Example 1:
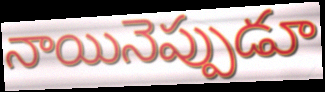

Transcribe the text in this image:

నాయినెప్పుడూ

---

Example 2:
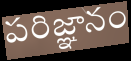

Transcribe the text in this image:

పరిజ్ఞానం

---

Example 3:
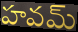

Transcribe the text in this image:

హవమ్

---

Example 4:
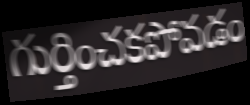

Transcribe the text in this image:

గుర్తించకపోవడం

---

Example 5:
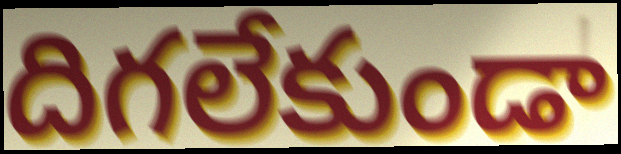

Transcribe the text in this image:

దిగలేకుండా